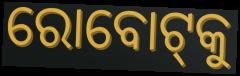
ରୋବୋଟ୍‌କୁ